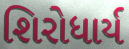
શિરોધાર્ય